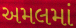
અમલમાં